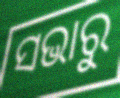
ସଭାରୁ